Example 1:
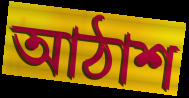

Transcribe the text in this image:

আঠাশ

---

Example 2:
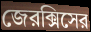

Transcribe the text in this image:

জেরক্সিসের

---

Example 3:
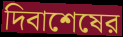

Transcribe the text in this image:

দিবাশেষের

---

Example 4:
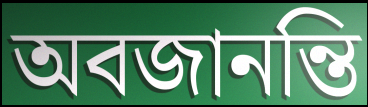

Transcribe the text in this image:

অবজানন্তি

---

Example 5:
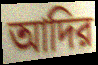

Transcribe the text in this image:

আদির